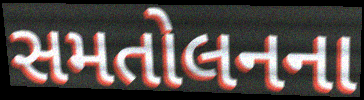
સમતોલનના